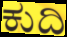
ಕುದಿ